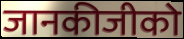
जानकीजीको